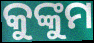
କୁଙ୍କୁମ